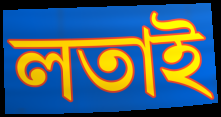
লতাই